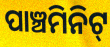
ପାଞ୍ଚମିନିଟ୍